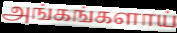
அங்கங்களாய்